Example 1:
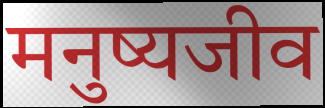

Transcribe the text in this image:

मनुष्यजीव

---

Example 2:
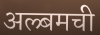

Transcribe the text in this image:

अल्बमची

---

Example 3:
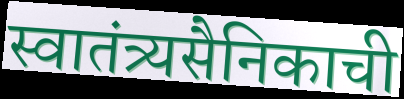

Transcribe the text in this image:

स्वातंत्र्यसैनिकाची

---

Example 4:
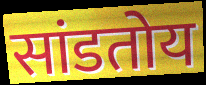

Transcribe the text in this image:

सांडतोय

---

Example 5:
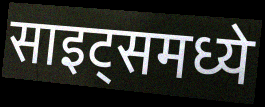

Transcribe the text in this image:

साइट्समध्ये